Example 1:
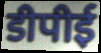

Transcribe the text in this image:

डीपीई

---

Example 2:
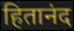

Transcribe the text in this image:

हितानंद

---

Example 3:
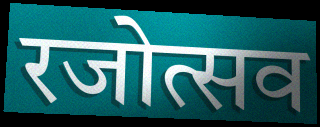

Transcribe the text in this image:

रजोत्सव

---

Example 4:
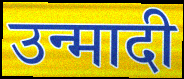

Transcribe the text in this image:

उन्मादी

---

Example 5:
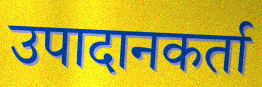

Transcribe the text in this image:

उपादानकर्ता